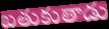
బతుకుతాడు